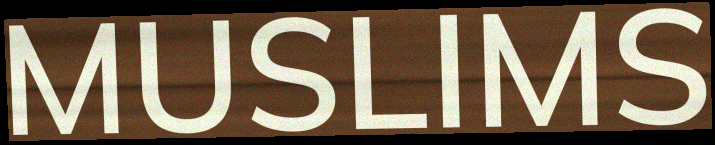
MUSLIMS